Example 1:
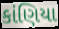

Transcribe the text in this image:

કાંણિયા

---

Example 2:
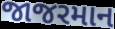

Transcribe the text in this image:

જાજરમાન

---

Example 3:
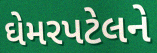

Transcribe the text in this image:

ઘેમરપટેલને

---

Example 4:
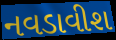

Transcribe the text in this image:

નવડાવીશ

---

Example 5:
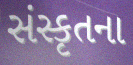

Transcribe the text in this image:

સંસ્કૃતના